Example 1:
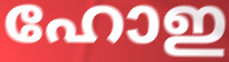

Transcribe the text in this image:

ഹോഇ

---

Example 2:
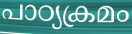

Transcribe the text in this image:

പാഠ്യക്രമം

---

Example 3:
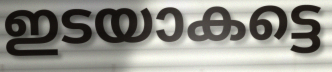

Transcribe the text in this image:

ഇടയാകട്ടെ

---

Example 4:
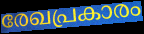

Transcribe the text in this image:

രേഖപ്രകാരം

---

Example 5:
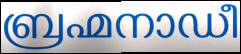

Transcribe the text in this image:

ബ്രഹ്മനാഡീ